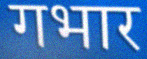
गभार